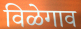
विळेगाव